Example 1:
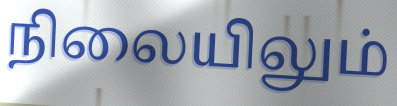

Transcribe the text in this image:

நிலையிலும்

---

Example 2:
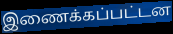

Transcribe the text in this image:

இணைக்கப்பட்டன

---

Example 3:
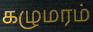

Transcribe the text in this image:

கழுமரம்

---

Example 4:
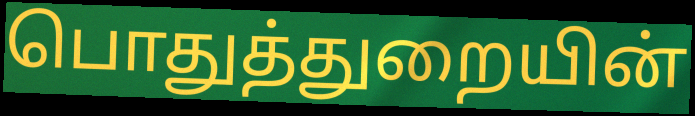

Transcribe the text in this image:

பொதுத்துறையின்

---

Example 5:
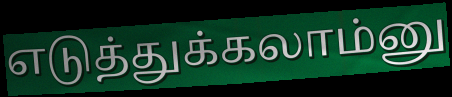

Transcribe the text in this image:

எடுத்துக்கலாம்னு